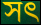
সৎ